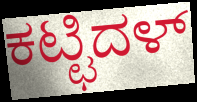
ಕಟ್ಟಿದಳ್